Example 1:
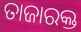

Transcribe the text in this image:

ତାଜାରକ୍ତ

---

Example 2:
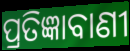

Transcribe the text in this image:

ପ୍ରତିଜ୍ଞାବାଣୀ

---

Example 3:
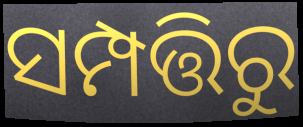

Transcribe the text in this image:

ସମ୍ପତ୍ତିରୁ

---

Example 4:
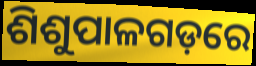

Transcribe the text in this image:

ଶିଶୁପାଳଗଡ଼ରେ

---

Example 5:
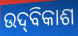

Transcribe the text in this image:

ଉଦ୍‌ବିକାଶ